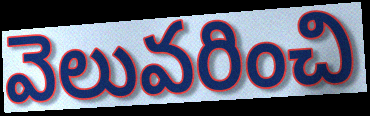
వెలువరించి